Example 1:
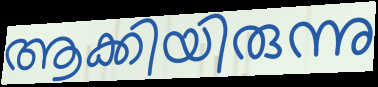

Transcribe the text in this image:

ആക്കിയിരുന്നു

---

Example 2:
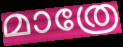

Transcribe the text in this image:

മാത്രേ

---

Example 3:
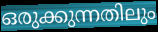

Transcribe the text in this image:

ഒരുക്കുന്നതിലും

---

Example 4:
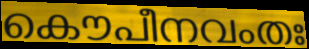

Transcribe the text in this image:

കൌപീനവംതഃ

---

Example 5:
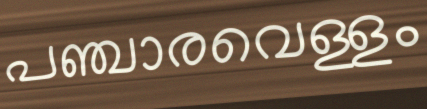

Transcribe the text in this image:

പഞ്ചാരവെള്ളം